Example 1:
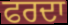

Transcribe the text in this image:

ਫਰਦਾ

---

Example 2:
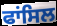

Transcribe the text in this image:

ਫਾਂਸਿਲ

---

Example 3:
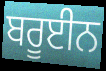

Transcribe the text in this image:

ਬਰੂਈਨ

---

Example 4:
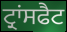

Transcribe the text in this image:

ਟ੍ਰਾਂਸਫੈਟ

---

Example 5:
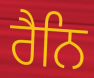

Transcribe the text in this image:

ਰੈਨਿ